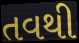
તવથી